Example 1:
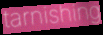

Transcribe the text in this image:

tarnishing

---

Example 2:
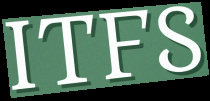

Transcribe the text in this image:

ITFS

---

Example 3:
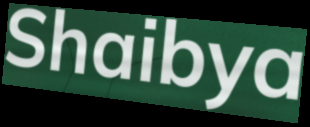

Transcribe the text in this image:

Shaibya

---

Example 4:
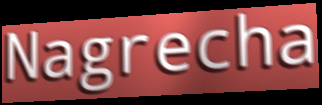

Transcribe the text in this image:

Nagrecha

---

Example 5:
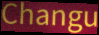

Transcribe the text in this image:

Changu